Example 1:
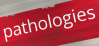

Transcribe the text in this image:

pathologies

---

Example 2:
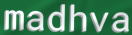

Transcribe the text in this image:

madhva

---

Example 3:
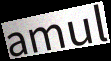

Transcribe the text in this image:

amul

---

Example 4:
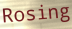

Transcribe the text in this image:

Rosing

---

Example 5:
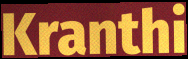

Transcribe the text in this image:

Kranthi